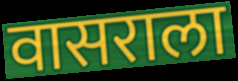
वासराला